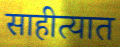
साहीत्यात